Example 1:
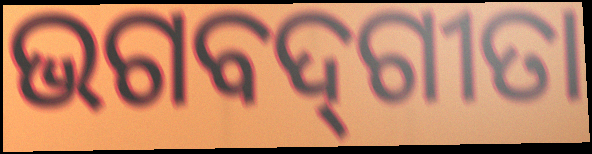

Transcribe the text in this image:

ଭଗବଦ୍‍ଗୀତା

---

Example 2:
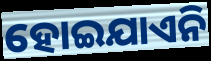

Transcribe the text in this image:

ହୋଇଯାଏନି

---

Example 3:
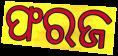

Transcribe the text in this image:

ଫରଜ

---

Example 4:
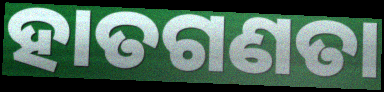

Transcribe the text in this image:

ହାତଗଣତା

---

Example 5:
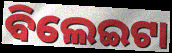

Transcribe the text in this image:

ବିଲେଇଟା